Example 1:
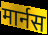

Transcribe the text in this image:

मार्नस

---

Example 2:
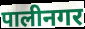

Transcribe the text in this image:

पालीनगर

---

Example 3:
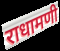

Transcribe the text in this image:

राधामणी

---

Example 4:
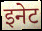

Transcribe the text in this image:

इनेट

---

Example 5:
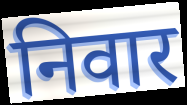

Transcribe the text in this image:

निवार